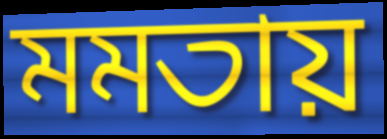
মমতায়